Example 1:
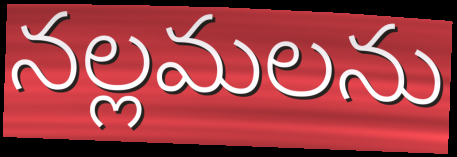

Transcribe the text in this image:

నల్లమలను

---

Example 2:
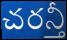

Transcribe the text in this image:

చరన్తీ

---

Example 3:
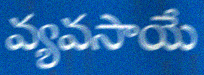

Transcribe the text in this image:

వ్యవసాయే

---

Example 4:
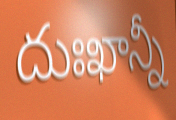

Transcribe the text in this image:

దుఃఖాన్నీ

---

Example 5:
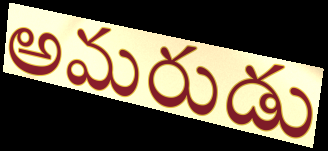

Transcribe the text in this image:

అమరుడు